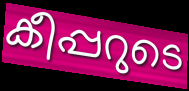
കീപ്പറുടെ